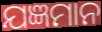
ଯଜ୍ଞମାନ